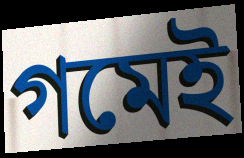
গমেই